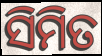
ସିମିତ